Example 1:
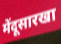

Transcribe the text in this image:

मेंदूसारखा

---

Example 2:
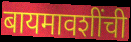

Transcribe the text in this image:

बायमावशींची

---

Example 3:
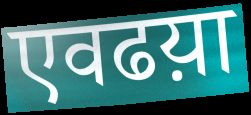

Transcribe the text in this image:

एवढय़ा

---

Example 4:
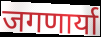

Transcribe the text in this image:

जगणार्या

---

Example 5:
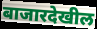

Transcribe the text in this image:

बाजारदेखील